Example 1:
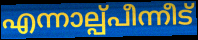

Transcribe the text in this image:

എന്നാല്പ്പീന്നീട്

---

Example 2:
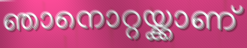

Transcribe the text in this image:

ഞാനൊറ്റയ്ക്കാണ്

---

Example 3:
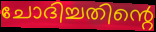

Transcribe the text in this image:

ചോദിച്ചതിന്റെ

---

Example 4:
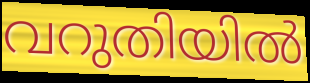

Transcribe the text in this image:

വറുതിയിൽ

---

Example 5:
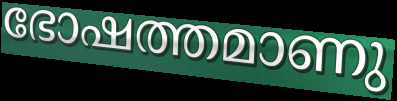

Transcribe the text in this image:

ഭോഷത്തമാണു